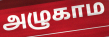
அழுகாம